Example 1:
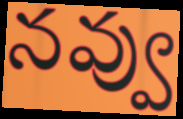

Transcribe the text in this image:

నవ్వు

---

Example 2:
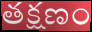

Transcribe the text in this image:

తక్షణం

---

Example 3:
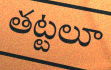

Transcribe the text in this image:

తట్టలూ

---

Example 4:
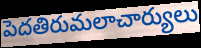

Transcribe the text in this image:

పెదతిరుమలాచార్యులు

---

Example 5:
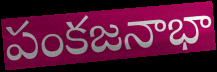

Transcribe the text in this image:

పంకజనాభా